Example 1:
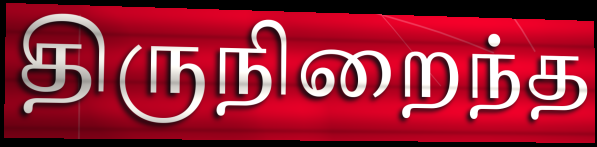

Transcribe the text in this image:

திருநிறைந்த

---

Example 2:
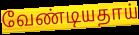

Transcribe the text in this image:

வேண்டியதாய்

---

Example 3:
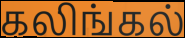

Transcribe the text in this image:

கலிங்கல்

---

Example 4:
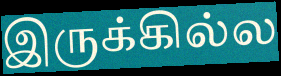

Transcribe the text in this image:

இருக்கில்ல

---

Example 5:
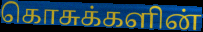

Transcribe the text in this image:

கொசுக்களின்